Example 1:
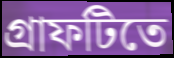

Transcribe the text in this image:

গ্রাফটিতে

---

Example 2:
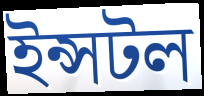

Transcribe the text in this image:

ইন্সটল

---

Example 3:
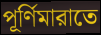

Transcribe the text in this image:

পূর্ণিমারাতে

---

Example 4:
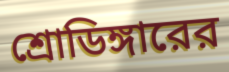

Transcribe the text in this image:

শ্রোডিঙ্গারের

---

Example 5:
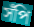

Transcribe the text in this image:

সঁপি